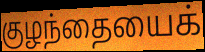
குழந்தையைக்